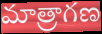
మాత్రాగణ